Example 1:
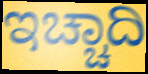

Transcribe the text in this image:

ಇಚ್ಚಾದಿ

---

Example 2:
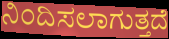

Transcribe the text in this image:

ನಿಂದಿಸಲಾಗುತ್ತದೆ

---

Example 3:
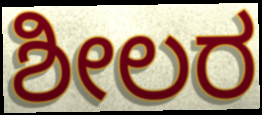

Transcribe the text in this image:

ಶೀಲರ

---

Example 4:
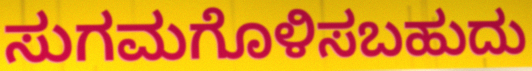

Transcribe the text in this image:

ಸುಗಮಗೊಳಿಸಬಹುದು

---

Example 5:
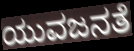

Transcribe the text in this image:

ಯುವಜನತೆ